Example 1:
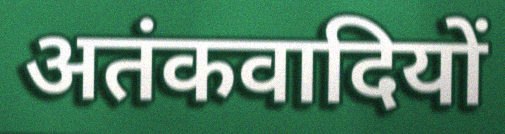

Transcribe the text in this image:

अतंकवादियों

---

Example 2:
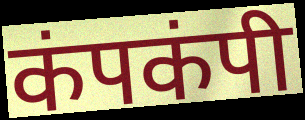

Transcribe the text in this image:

कंपकंपी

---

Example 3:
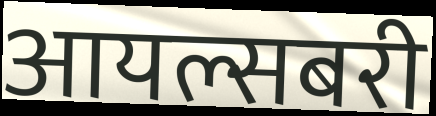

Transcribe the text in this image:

आयल्सबरी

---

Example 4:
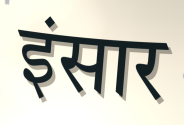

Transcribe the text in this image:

इंसार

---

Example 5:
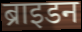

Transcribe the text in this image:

ब्राइडन